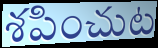
శపించుట